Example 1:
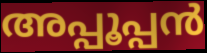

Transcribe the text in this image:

അപ്പൂപ്പൻ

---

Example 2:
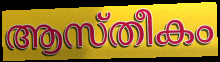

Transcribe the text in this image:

ആസ്തീകം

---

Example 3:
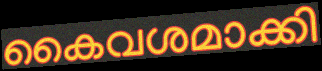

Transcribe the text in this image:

കൈവശമാക്കി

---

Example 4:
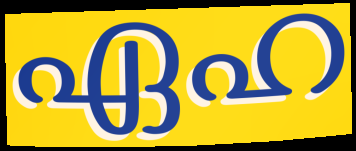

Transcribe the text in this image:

ഏഹ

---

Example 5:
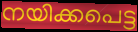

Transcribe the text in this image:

നയിക്കപെട്ട